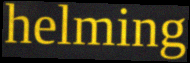
helming